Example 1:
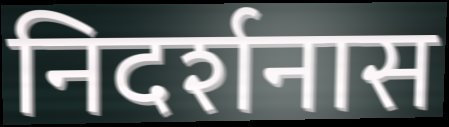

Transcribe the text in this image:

निदर्शनास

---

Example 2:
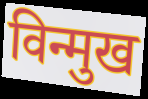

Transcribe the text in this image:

विन्मुख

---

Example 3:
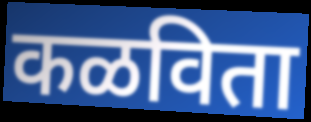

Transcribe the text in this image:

कळविता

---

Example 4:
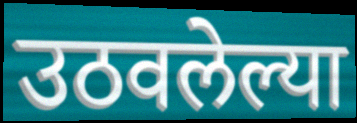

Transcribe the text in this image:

उठवलेल्या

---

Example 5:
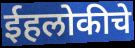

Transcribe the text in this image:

ईहलोकीचे